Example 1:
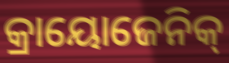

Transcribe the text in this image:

କ୍ରାୟୋଜେନିକ୍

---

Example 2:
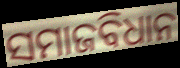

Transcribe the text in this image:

ସମାଜବିଧାନ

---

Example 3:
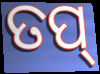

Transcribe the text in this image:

ତପ୍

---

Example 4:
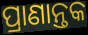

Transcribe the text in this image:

ପ୍ରାଣାନ୍ତକ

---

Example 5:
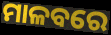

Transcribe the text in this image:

ମାଳବରେ